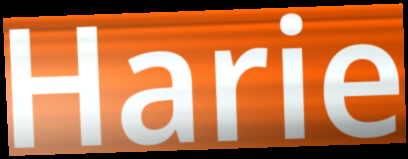
Harie